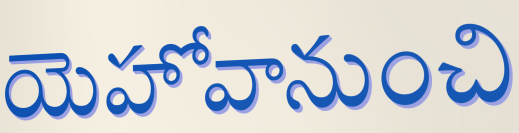
యెహోవానుంచి